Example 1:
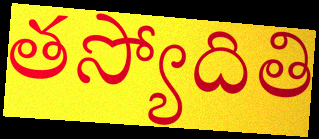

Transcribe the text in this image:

తస్యోదితి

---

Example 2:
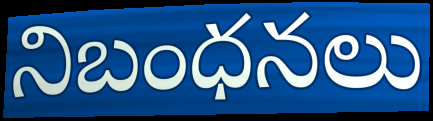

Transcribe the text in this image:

నిబంధనలు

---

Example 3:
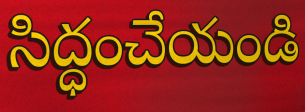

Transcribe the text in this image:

సిద్ధంచేయండి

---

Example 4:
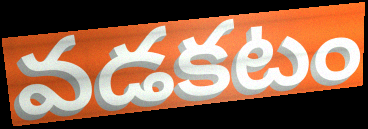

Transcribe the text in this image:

వడకటం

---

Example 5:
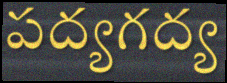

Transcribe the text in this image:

పద్యగద్య